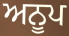
ਅਨੂਪ